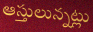
ఆస్తులున్నట్లు